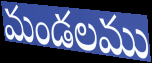
మండలము